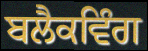
ਬਲੈਕਵਿੰਗ